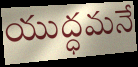
యుద్ధమనే